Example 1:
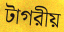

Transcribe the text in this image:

টাগরীয়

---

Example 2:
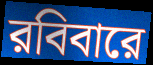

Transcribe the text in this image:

রবিবারে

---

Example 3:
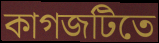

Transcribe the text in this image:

কাগজটিতে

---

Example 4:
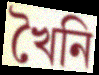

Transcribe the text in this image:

খৈনি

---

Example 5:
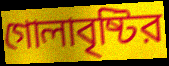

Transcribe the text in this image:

গোলাবৃষ্টির